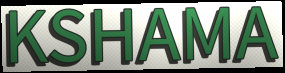
KSHAMA